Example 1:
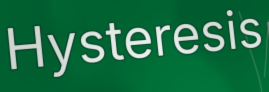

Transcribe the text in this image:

Hysteresis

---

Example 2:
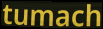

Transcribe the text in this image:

tumach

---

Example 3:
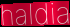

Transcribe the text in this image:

haldia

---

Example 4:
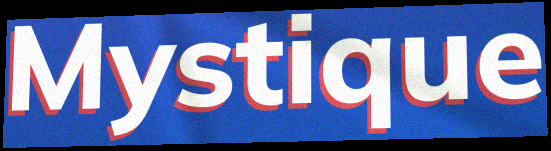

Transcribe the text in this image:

Mystique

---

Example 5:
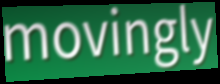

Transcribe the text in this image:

movingly